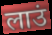
लाउं